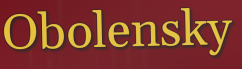
Obolensky